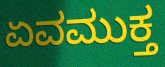
ಏವಮುಕ್ತ